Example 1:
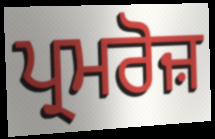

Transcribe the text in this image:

ਪ੍ਰਮਰੋਜ਼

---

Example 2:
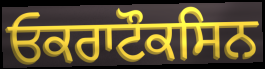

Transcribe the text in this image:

ਓਕਰਾਟੌਕਸਿਨ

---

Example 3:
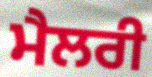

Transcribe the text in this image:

ਮੈਲਰੀ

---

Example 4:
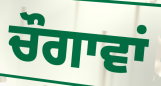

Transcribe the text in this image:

ਚੌਗਾਵਾਂ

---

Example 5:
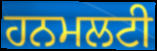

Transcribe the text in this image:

ਹਨਮਲਟੀ